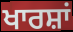
ਖਾਰਸ਼ਾਂ